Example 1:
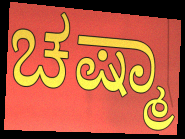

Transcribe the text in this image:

ಚಷ್ಮಾ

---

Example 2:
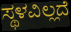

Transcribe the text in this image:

ಸ್ಥಳವಿಲ್ಲದೆ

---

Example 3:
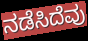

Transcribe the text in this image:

ನಡೆಸಿದೆವು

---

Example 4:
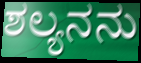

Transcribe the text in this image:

ಶಲ್ಯನನು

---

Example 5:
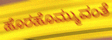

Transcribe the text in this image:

ಹೊರಹೊಮ್ಮುವಂತೆ